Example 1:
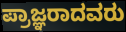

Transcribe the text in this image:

ಪ್ರಾಜ್ಞರಾದವರು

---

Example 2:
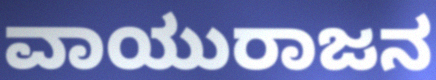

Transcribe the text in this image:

ವಾಯುರಾಜನ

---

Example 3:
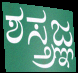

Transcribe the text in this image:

ಶಸ್ತ್ರಜ್ಞ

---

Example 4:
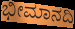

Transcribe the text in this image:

ಭೀಮಾನದಿ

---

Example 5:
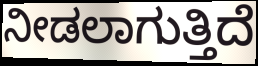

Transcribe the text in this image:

ನೀಡಲಾಗುತ್ತಿದೆ